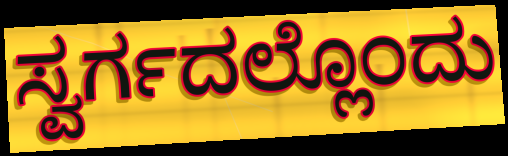
ಸ್ವರ್ಗದಲ್ಲೊಂದು